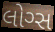
લોગ્સ